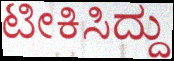
ಟೀಕಿಸಿದ್ದು